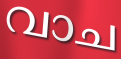
വാച